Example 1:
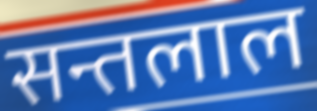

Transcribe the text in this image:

सन्तलाल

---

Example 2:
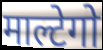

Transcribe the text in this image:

माल्टेगो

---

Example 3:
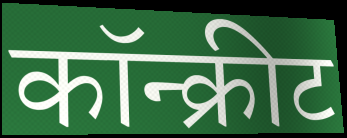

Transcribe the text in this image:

कॉन्क्रीट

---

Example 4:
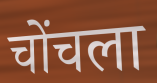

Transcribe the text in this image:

चोंचला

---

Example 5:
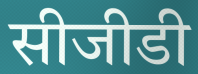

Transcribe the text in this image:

सीजीडी